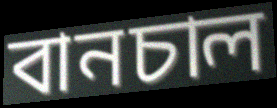
বানচাল